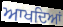
ਆਖਦਿਆਂ